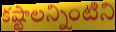
కష్టాలన్నింటిని